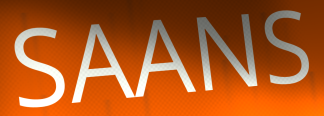
SAANS